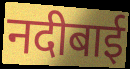
नदीबाई